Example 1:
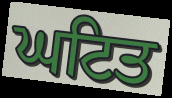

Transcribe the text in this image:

ਘਟਿਤ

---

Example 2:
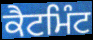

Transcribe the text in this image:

ਕੈਟਮਿੰਟ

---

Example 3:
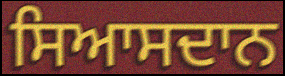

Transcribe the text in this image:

ਸਿਆਸਦਾਨ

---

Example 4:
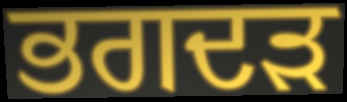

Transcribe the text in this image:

ਭਗਦੜ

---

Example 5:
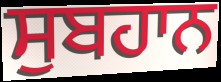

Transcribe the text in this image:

ਸੁਬਹਾਨ